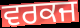
ਵਰਕਜ